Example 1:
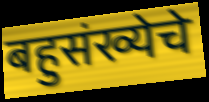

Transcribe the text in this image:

बहुसंख्येचे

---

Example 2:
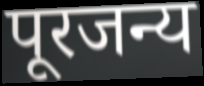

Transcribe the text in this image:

पूरजन्य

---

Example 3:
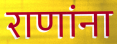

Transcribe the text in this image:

राणांना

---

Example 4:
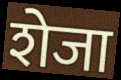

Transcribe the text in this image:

शेजा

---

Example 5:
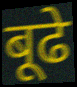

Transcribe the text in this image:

बूढे